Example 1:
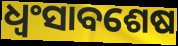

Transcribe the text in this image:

ଧ୍ଵଂସାବଶେଷ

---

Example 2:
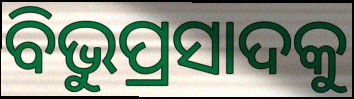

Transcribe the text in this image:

ବିଭୁପ୍ରସାଦକୁ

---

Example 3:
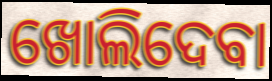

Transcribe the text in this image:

ଖୋଲିଦେବା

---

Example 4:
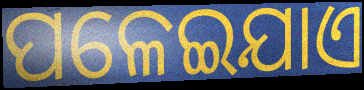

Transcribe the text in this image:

ପଳେଇଯାଏ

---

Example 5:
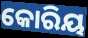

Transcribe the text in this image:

କୋରିୟ